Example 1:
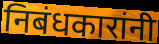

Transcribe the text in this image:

निबंधकारांनी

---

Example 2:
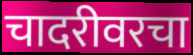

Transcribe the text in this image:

चादरीवरचा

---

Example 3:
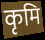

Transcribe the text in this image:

कृमि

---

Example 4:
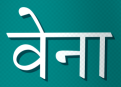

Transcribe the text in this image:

वेना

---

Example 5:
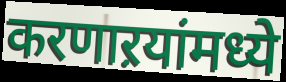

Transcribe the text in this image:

करणाऱयांमध्ये